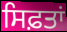
ਸਿਫ਼ਤਾਂ